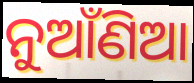
ନୁଆଁଣିଆ